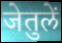
जेतुलें